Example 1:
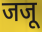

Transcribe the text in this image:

जजू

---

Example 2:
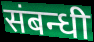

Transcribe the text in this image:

संबन्धी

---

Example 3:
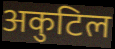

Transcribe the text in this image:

अकुटिल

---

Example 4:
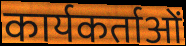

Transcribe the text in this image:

कार्यकर्ताओं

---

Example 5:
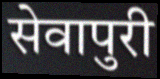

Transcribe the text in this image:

सेवापुरी